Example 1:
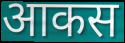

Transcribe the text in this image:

आकस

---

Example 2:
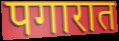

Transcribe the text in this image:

पगारात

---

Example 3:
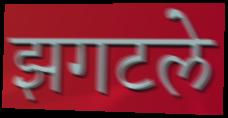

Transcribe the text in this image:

झगटले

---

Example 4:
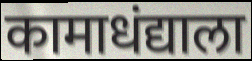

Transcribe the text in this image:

कामाधंद्याला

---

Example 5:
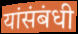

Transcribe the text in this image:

यांसंबंधी